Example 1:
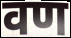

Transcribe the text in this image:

वण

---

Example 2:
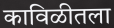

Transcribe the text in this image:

काविळीतला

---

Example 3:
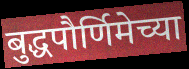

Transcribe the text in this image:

बुद्धपौर्णिमेच्या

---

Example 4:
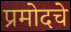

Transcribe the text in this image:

प्रमोदचे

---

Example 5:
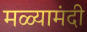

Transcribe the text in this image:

मळ्यामंदी